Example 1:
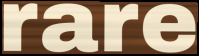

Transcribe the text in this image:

rare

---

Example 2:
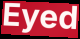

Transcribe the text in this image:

Eyed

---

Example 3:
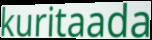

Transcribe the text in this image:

kuritaada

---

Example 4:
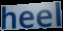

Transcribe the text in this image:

heel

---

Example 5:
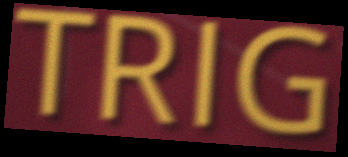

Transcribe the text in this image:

TRIG